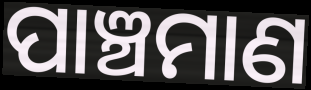
ପାଞ୍ଚମାଣ